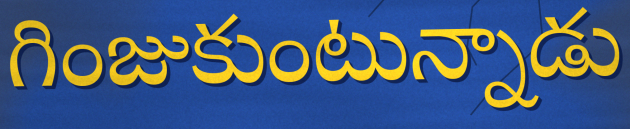
గింజుకుంటున్నాడు